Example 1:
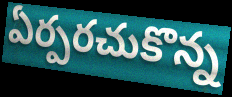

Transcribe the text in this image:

ఏర్పరచుకొన్న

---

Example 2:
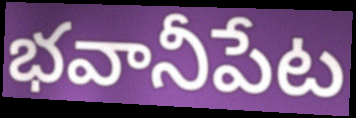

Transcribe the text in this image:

భవానీపేట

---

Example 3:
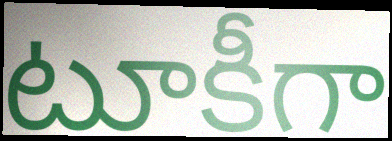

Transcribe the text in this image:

టూకీగా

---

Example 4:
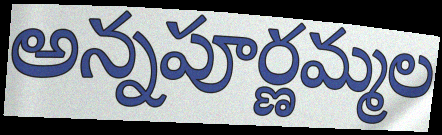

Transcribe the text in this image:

అన్నపూర్ణమ్మల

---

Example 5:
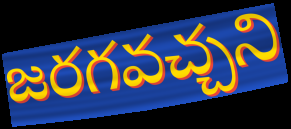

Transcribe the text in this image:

జరగవచ్చని